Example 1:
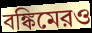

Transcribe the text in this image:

বঙ্কিমেরও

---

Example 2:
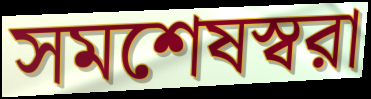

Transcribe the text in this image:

সমশেষস্বরা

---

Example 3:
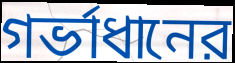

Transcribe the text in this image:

গর্ভাধানের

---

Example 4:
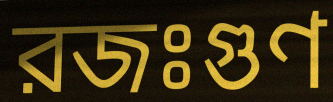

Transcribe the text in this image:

রজঃগুণ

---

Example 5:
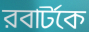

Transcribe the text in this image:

রবার্টকে